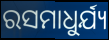
ରସମାଧୁର୍ଯ୍ୟ